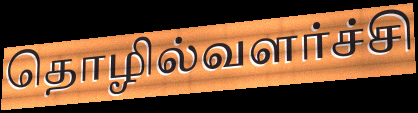
தொழில்வளர்ச்சி